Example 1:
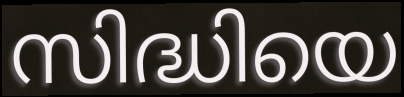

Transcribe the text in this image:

സിദ്ധിയെ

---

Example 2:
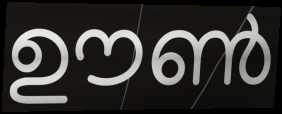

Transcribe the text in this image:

ഊൺ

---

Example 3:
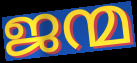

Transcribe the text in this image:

ജന്മ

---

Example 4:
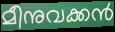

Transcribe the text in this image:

മീനുവക്കൻ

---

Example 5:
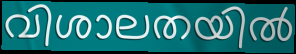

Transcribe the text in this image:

വിശാലതയിൽ